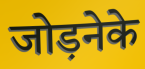
जोड़नेके